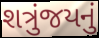
શત્રુંજયનું